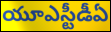
యూఎస్టీడీఏ